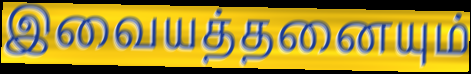
இவையத்தனையும்